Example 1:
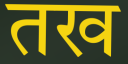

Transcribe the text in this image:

तख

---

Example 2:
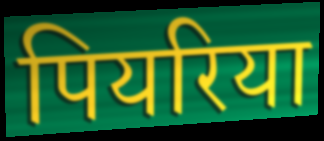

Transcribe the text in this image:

पियरिया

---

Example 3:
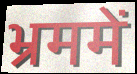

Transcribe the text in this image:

भ्रममें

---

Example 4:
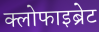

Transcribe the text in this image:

क्लोफाइब्रेट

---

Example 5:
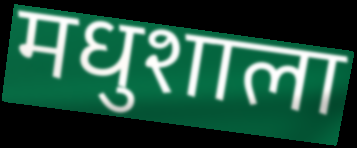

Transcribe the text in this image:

मधुशाला